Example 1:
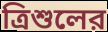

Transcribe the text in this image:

ত্রিশুলের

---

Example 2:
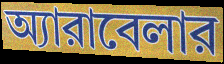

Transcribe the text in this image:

অ্যারাবেলার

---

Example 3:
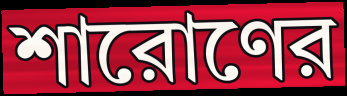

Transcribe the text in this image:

শারোণের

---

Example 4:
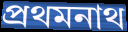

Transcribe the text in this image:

প্রথমনাথ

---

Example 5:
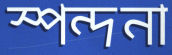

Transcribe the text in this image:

স্পন্দনা